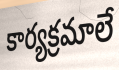
కార్యక్రమాలే